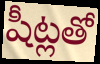
షీట్లతో